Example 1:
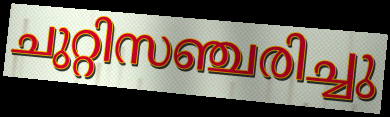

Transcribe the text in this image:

ചുറ്റിസഞ്ചരിച്ചു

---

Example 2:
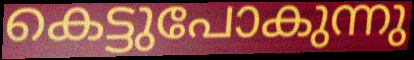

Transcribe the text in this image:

കെട്ടുപോകുന്നു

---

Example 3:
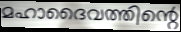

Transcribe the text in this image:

മഹാദൈവത്തിന്റെ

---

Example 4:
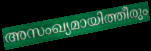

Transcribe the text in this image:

അസംഖ്യമായിത്തീരും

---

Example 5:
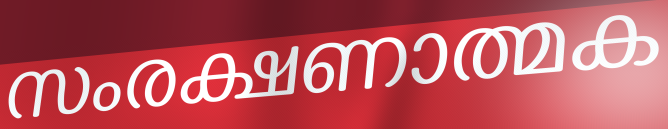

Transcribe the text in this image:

സംരക്ഷണാത്മക